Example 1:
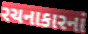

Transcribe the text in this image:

રચનાકારનાં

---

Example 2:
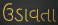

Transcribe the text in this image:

ઉડાવતા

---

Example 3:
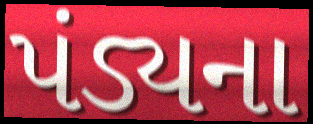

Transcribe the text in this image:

પંડ્યના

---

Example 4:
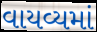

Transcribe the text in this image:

વાયવ્યમાં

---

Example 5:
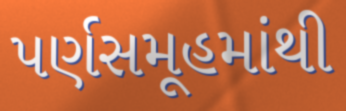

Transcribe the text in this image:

પર્ણસમૂહમાંથી